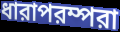
ধারাপরম্পরা